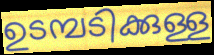
ഉടമ്പടിക്കുള്ള